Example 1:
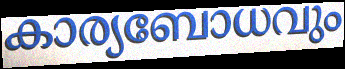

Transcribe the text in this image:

കാര്യബോധവും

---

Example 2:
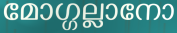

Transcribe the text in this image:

മോഗ്ഗല്ലാനോ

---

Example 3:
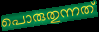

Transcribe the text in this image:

പൊരുതുന്നത്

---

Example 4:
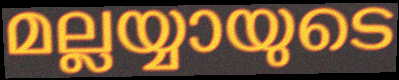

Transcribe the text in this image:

മല്ലയ്യായുടെ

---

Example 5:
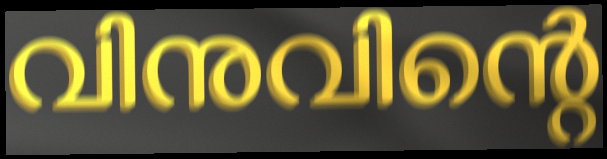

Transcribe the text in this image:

വിനുവിന്റെ